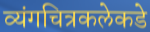
व्यंगचित्रकलेकडे